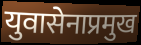
युवासेनाप्रमुख